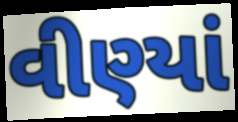
વીણ્યાં